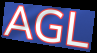
AGL